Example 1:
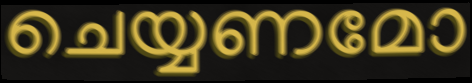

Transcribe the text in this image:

ചെയ്യണമോ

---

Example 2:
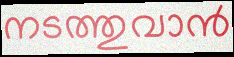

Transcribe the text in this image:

നടത്തുവാൻ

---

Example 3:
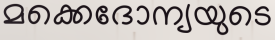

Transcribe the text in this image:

മക്കെദോന്യയുടെ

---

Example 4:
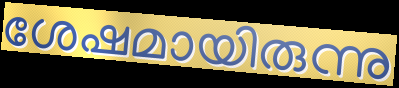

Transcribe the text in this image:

ശേഷമായിരുന്നു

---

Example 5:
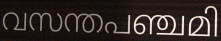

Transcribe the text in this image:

വസന്തപഞ്ചമി